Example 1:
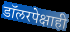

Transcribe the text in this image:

डॉलरपेक्षाही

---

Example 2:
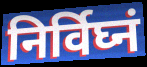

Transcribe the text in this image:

निर्विघ्नं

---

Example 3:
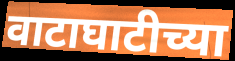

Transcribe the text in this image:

वाटाघाटीच्या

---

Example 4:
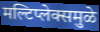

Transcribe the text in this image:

मल्टिप्लेक्समुळे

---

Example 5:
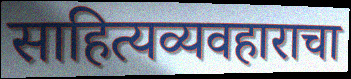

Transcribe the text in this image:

साहित्यव्यवहाराचा